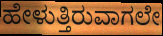
ಹೇಳುತ್ತಿರುವಾಗಲೇ